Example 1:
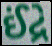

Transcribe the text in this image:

ઈંદ્રે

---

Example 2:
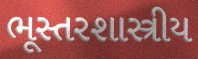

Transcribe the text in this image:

ભૂસ્તરશાસ્ત્રીય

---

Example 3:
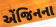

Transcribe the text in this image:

એંજિનના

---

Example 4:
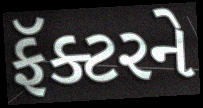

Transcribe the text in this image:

ફૅક્ટરને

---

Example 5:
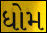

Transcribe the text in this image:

ધોમ